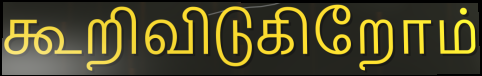
கூறிவிடுகிறோம்